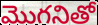
మొగనితో